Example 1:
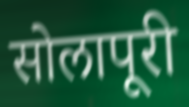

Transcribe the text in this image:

सोलापूरी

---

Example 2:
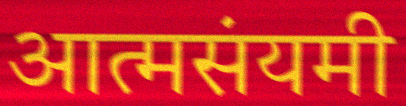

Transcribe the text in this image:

आत्मसंयमी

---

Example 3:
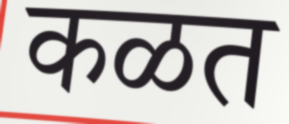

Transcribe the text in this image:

कळत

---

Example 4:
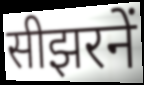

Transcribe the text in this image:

सीझरनें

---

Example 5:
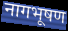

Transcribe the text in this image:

नागभूषण